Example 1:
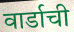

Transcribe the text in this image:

वार्डाची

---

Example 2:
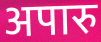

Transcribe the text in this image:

अपारु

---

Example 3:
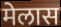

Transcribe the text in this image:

मेलास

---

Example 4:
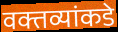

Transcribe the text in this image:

वक्तव्यांकडे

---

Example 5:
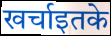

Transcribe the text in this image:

खर्चाइतके